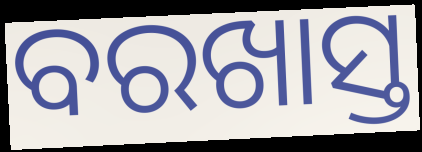
ବରଖାସ୍ତ